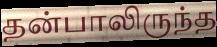
தன்பாலிருந்த